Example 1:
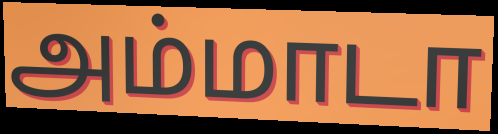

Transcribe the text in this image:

அம்மாடா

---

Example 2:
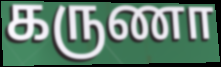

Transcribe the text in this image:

கருணா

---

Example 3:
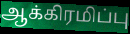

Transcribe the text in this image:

ஆக்கிரமிப்பு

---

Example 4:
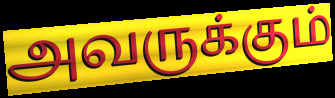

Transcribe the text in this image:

அவருக்கும்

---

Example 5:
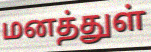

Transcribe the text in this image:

மனத்துள்